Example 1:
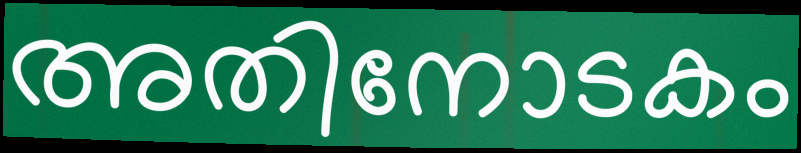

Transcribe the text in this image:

അതിനോടകം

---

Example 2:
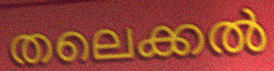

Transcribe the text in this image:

തലെക്കൽ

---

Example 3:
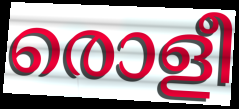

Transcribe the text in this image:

രൊളീ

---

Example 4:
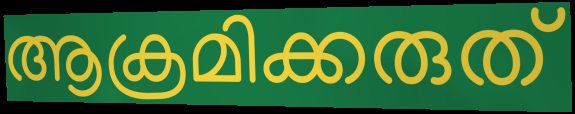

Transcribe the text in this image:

ആക്രമിക്കരുത്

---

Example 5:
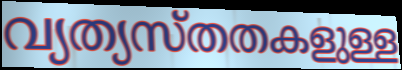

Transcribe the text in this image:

വ്യത്യസ്തതകളുള്ള